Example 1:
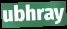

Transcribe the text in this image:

ubhray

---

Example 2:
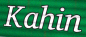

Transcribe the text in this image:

Kahin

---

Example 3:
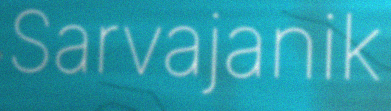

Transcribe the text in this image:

Sarvajanik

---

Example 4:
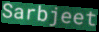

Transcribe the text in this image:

Sarbjeet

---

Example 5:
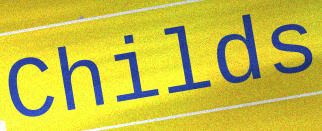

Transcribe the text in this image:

Childs